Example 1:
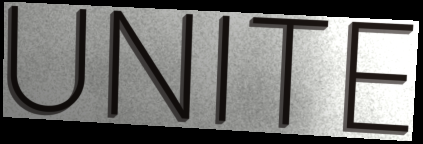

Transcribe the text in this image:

UNITE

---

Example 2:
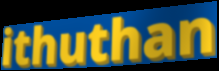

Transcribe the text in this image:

ithuthan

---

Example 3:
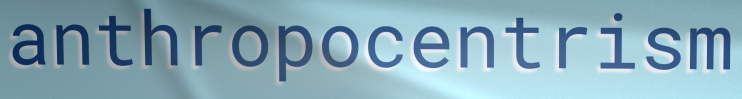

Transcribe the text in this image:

anthropocentrism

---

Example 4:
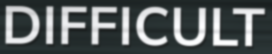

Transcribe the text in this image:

DIFFICULT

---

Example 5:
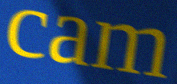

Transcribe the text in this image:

cam